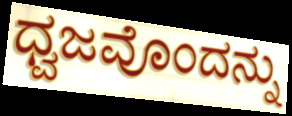
ಧ್ವಜವೊಂದನ್ನು